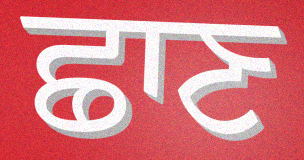
ਛਾਣ